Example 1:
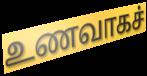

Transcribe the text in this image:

உணவாகச்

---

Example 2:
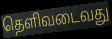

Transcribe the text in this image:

தெளிவடைவது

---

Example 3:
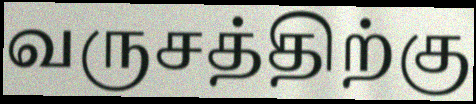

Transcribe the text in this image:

வருசத்திற்கு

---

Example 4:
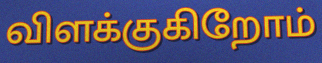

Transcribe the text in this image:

விளக்குகிறோம்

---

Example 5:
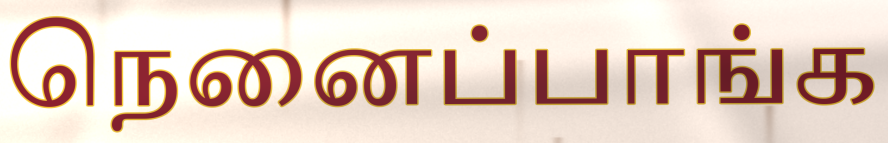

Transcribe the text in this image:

நெனைப்பாங்க